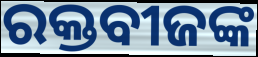
ରକ୍ତବୀଜଙ୍କ